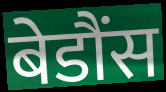
बेडौंस